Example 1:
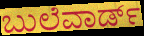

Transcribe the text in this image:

ಬುಲೆವಾರ್ಡ್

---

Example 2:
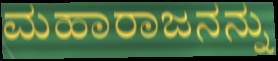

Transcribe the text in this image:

ಮಹಾರಾಜನನ್ನು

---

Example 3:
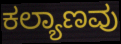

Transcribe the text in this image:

ಕಲ್ಯಾಣವು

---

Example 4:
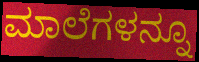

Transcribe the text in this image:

ಮಾಲೆಗಳನ್ನೂ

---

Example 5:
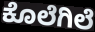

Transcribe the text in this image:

ಕೊಲೆಗಿಲೆ